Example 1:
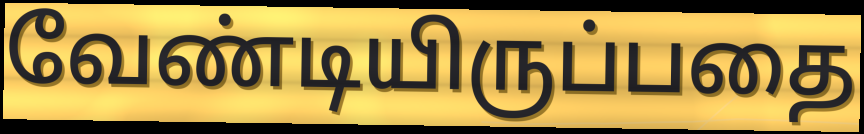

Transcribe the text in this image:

வேண்டியிருப்பதை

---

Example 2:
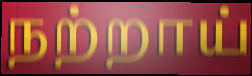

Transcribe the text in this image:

நற்றாய்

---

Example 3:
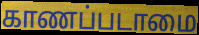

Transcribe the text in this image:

காணப்படாமை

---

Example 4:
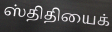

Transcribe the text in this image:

ஸ்திதியைக்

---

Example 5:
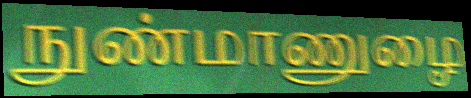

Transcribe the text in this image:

நுண்மாணுழை